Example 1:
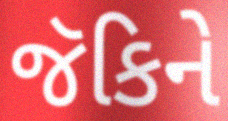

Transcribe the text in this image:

જૅકિને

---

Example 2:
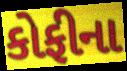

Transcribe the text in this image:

કોફીના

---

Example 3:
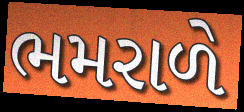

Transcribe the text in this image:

ભમરાળે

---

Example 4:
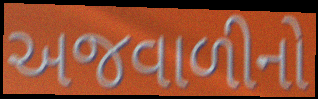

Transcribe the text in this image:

અજવાળીનો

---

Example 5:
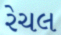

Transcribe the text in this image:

રેચલ